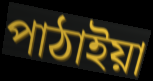
পাঠাইয়া